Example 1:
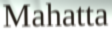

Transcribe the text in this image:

Mahatta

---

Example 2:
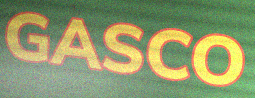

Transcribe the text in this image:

GASCO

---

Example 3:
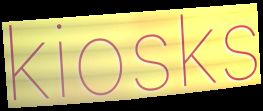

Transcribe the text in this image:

kiosks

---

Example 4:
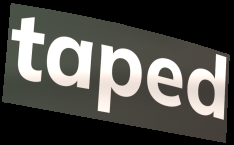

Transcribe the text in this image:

taped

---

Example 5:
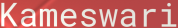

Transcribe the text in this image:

Kameswari